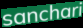
sanchari